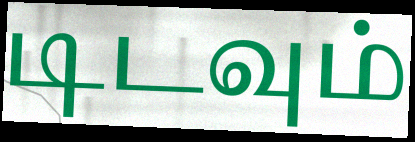
டிடவும்